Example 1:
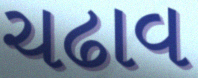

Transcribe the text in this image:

ચઢાવ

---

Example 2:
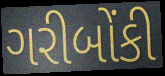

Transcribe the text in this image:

ગરીબોંકી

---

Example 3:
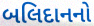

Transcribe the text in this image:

બલિદાનનો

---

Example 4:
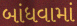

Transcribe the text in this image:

બાંધવામાં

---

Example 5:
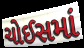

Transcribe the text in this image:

ચોઈસમાં